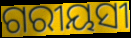
ଗରୀୟସୀ